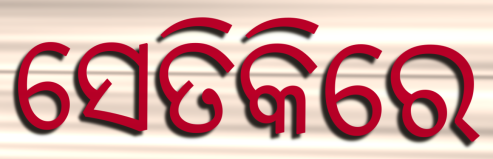
ସେତିକିରେ